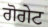
ਗੋਗੇਟ